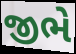
જીભે